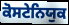
ਕੋਸਟੇਨਿਯੁਕ